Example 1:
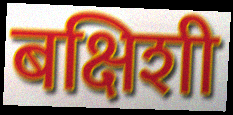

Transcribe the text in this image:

बक्षिशी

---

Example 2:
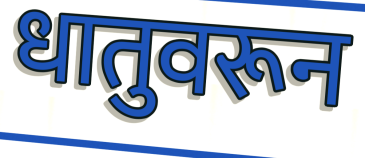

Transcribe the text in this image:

धातुवरून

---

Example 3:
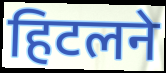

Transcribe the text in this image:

हिटलने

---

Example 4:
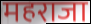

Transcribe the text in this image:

महराजा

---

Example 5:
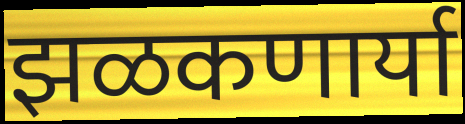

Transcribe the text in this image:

झळकणार्या